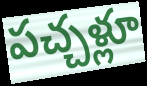
పచ్చళ్లూ